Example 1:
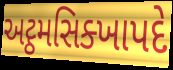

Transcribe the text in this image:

અટ્ઠમસિક્ખાપદે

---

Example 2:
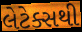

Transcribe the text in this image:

લેટેક્સથી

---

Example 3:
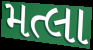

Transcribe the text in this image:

મત્લા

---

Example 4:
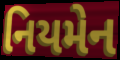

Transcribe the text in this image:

નિયમેન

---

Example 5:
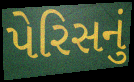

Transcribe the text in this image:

પેરિસનું